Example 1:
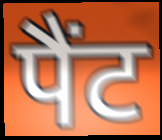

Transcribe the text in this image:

पैंट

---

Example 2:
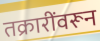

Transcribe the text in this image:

तक्रारींवरून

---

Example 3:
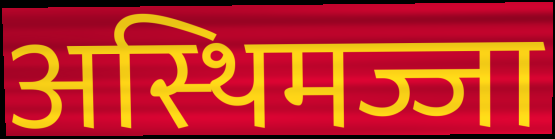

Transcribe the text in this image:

अस्थिमज्जा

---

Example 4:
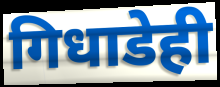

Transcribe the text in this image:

गिधाडेही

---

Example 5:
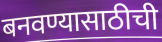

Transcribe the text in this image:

बनवण्यासाठीची